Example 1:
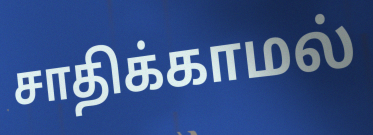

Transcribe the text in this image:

சாதிக்காமல்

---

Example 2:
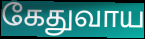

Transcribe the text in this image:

கேதுவாய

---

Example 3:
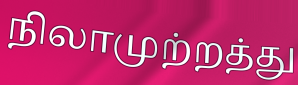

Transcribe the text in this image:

நிலாமுற்றத்து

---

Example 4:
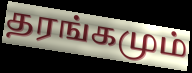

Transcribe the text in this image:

தரங்கமும்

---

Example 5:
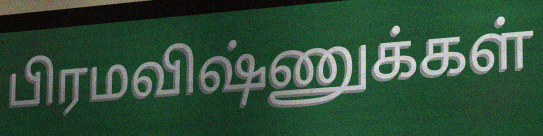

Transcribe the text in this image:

பிரமவிஷ்ணுக்கள்